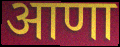
आणा